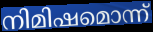
നിമിഷമൊന്ന്